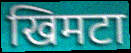
खिमटा